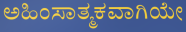
ಅಹಿಂಸಾತ್ಮಕವಾಗಿಯೇ